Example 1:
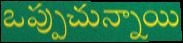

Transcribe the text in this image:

ఒప్పుచున్నాయి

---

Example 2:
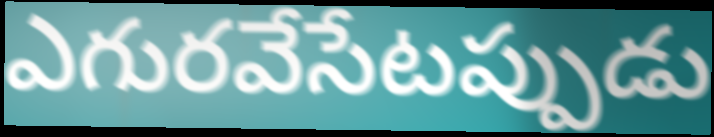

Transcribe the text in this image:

ఎగురవేసేటప్పుడు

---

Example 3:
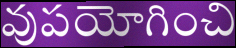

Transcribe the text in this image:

వుపయోగించి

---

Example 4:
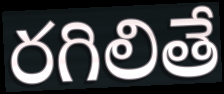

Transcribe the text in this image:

రగిలితే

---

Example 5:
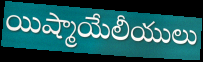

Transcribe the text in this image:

యిష్మాయేలీయులు